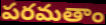
పరమతాం